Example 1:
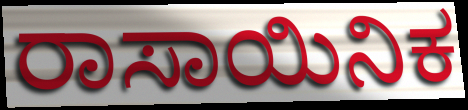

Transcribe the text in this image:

ರಾಸಾಯಿನಿಕ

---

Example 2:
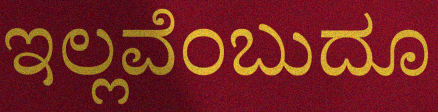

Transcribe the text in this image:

ಇಲ್ಲವೆಂಬುದೂ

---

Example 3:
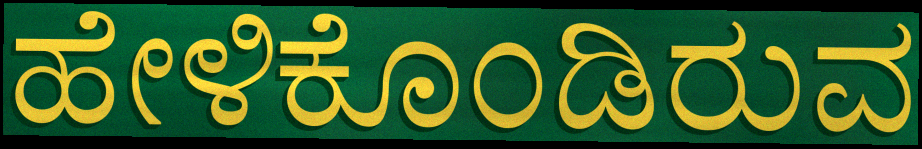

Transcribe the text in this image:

ಹೇಳಿಕೊಂಡಿರುವ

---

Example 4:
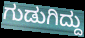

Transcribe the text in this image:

ಗುಡುಗಿದ್ದು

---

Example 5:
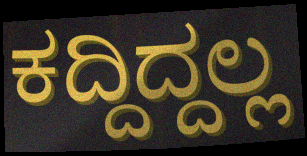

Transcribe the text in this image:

ಕದ್ದಿದ್ದಲ್ಲ